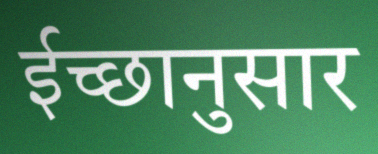
ईच्छानुसार